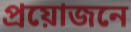
প্ৰয়োজনে